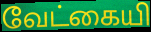
வேட்கையி